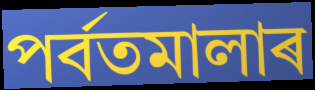
পৰ্বতমালাৰ